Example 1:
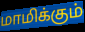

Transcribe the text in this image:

மாமிக்கும்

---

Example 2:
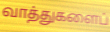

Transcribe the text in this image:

வாத்துகளைப்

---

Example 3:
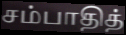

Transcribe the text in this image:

சம்பாதித்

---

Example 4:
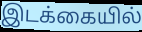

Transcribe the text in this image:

இடக்கையில்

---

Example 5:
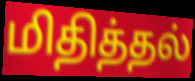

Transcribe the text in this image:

மிதித்தல்